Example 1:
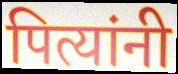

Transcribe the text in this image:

पित्यांनी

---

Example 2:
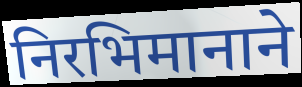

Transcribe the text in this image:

निरभिमानाने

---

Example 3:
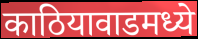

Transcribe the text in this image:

काठियावाडमध्ये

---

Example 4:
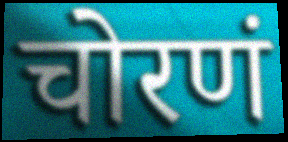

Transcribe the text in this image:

चोरणं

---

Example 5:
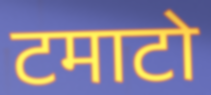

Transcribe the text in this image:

टमाटो